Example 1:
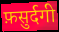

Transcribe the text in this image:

फ़सुर्दगी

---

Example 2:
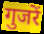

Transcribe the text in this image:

गुजरें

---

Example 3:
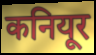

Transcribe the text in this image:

कनियूर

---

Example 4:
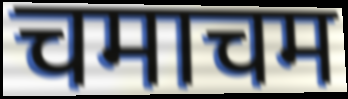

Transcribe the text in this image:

चमाचम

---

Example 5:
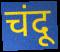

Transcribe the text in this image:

चंदू